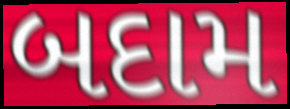
બદામ